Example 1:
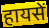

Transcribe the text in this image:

हायसें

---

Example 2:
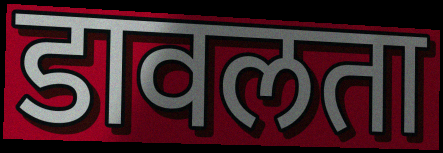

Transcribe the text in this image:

डावलता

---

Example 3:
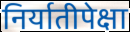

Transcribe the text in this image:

निर्यातीपेक्षा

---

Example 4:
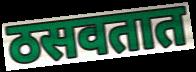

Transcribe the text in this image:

ठसवतात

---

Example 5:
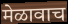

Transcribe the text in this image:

मेळावाच